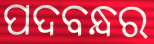
ପଦବନ୍ଧର